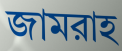
জামরাহ